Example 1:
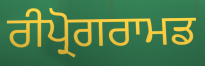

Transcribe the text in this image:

ਰੀਪ੍ਰੋਗਰਾਮਡ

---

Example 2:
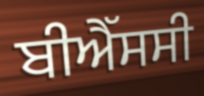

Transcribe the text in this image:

ਬੀਐੱਸਸੀ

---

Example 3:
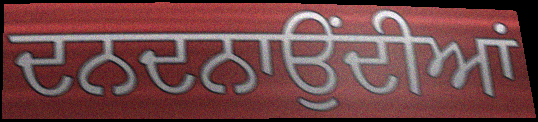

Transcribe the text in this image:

ਦਨਦਨਾਉਂਦੀਆਂ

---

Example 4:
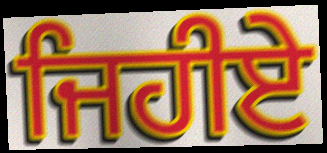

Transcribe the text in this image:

ਜਿਹੀਏ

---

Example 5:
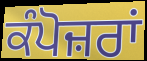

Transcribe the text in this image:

ਕੰਪੋਜ਼ਰਾਂ